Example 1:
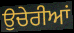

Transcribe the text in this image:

ਉਚੇਰੀਆਂ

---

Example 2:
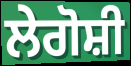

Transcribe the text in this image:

ਲੇਗੋਸ਼ੀ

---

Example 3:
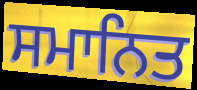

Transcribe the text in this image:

ਸਮਾਨਿਤ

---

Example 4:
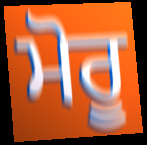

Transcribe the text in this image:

ਮੋਰੂ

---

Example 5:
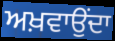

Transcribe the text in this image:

ਅਖ਼ਵਾਉਂਦਾ